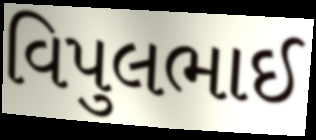
વિપુલભાઈ